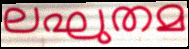
ലഘുതമ